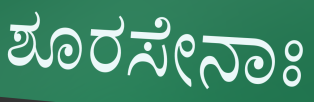
ಶೂರಸೇನಾಃ